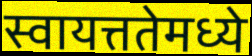
स्वायत्ततेमध्ये